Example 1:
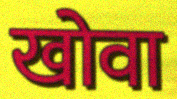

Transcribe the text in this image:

खोवा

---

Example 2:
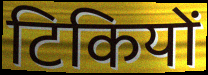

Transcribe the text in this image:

टिकियों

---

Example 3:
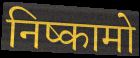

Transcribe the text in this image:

निष्कामो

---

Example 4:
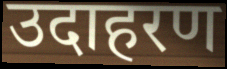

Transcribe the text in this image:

उदाहरण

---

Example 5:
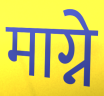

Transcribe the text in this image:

माग्ने